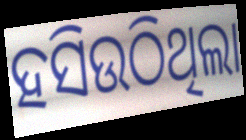
ହସିଉଠିଥିଲା